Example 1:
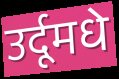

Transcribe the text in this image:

उर्दूमधे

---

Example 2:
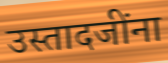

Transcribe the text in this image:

उस्तादजींना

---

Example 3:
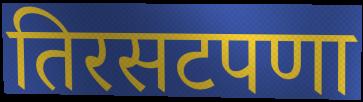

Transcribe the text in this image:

तिरसटपणा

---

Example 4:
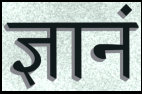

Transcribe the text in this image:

ज्ञानं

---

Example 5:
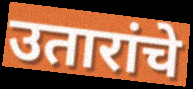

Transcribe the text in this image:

उतारांचे